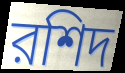
রশিদ